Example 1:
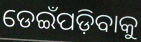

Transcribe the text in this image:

ଡେଇଁପଡ଼ିବାକୁ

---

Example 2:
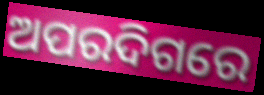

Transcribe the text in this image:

ଅପରଦିଗରେ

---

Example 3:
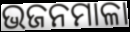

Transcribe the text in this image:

ଭଜନମାଳା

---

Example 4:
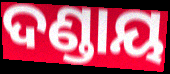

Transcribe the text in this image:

ଦଣ୍ଡାୟ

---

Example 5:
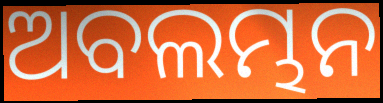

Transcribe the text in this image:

ଅବଲମ୍ଭନ